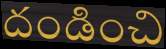
దండించి